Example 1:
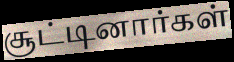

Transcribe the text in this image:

சூட்டினார்கள்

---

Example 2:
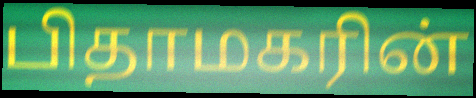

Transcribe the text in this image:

பிதாமகரின்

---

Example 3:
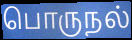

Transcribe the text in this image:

பொருநல்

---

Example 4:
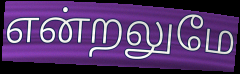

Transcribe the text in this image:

என்றலுமே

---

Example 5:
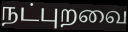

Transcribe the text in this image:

நட்புறவை